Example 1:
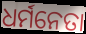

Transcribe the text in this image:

ଧର୍ମନେତା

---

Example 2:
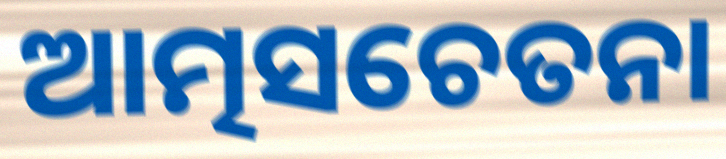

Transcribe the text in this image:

ଆତ୍ମସଚେତନା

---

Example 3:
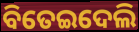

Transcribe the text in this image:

ବିତେଇଦେଲି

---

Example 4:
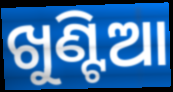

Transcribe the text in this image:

ଖୁଣ୍ଟିଆ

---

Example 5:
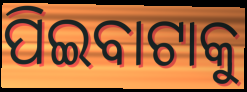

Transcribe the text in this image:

ପିଇବାଟାକୁ